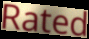
Rated